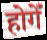
होगेँ